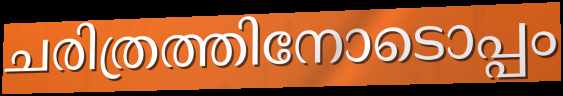
ചരിത്രത്തിനോടൊപ്പം